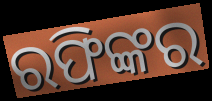
ରଫିଙ୍କର